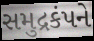
સમુદ્રકંપને